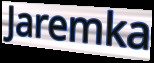
Jaremka